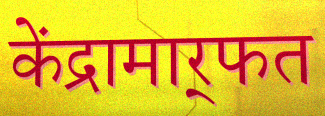
केंद्रामार्फत